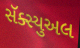
સૅક્સ્યુઅલ